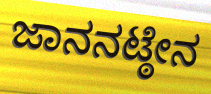
ಜಾನನಟ್ಠೇನ